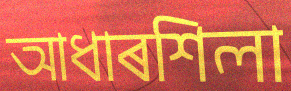
আধাৰশিলা